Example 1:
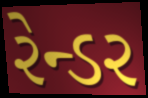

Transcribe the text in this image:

રેન્ડર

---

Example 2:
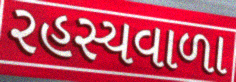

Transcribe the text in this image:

રહસ્યવાળા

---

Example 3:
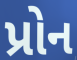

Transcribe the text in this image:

પ્રોન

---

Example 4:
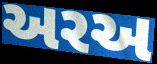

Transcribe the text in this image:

અરઅ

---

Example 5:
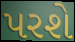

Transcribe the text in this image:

પરશે